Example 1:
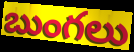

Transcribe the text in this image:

బుంగలు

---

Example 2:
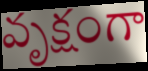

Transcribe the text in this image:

వృక్షంగా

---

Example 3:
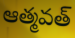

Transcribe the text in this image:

ఆత్మవత్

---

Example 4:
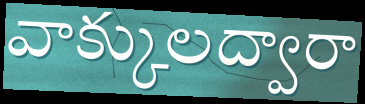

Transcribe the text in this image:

వాక్కులద్వారా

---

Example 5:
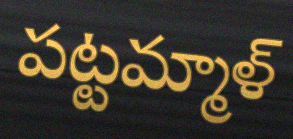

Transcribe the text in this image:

పట్టమ్మాళ్